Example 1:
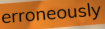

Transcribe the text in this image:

erroneously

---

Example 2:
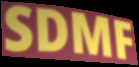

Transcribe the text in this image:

SDMF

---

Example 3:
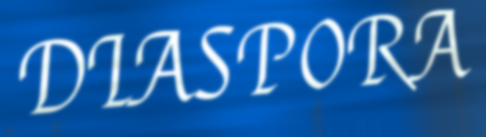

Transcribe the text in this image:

DIASPORA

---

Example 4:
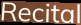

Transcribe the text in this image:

Recital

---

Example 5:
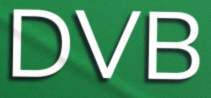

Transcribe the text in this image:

DVB